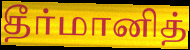
தீர்மானித்